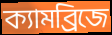
ক্যামব্রিজে